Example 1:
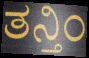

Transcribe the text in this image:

ತನ್ತಿಂ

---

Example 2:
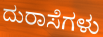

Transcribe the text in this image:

ದುರಾಸೆಗಳು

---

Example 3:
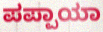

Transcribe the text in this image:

ಪಪ್ಪಾಯಾ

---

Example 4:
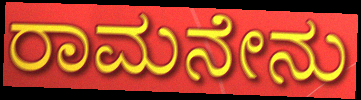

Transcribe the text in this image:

ರಾಮನೇನು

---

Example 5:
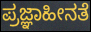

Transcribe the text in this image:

ಪ್ರಜ್ಞಾಹೀನತೆ